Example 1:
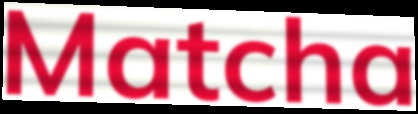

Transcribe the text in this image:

Matcha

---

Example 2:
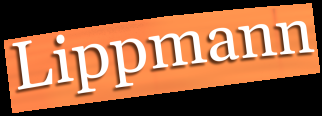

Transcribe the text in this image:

Lippmann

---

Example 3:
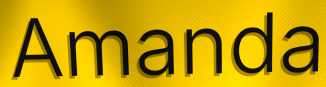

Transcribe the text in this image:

Amanda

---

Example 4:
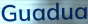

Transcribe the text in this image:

Guadua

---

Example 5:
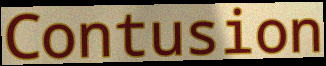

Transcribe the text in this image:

Contusion